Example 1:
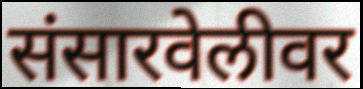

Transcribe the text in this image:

संसारवेलीवर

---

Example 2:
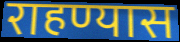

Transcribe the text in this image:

राहण्यास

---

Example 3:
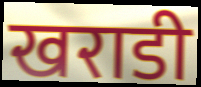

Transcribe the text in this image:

खराडी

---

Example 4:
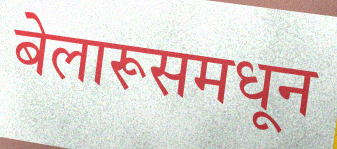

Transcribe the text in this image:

बेलारूसमधून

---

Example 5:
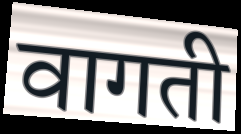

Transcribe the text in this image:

वागती